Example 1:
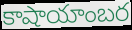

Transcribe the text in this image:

కాషాయాంబర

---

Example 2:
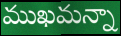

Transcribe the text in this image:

ముఖమన్నా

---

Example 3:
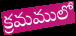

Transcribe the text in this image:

క్రమములో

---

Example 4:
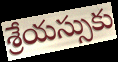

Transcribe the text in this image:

శ్రేయస్సుకు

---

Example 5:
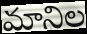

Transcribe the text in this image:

మానిల